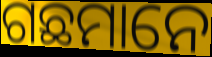
ଗଛମାନେ